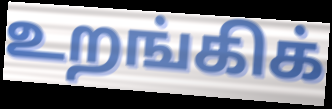
உறங்கிக்